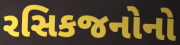
રસિકજનોનો